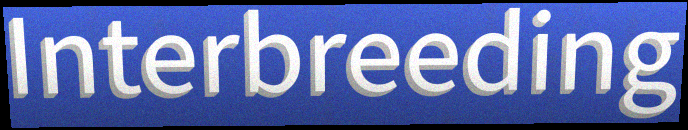
Interbreeding